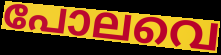
പോലവെ